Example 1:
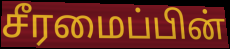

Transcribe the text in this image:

சீரமைப்பின்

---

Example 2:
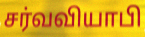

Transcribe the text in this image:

சர்வவியாபி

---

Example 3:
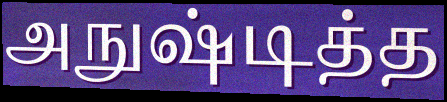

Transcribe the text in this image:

அநுஷ்டித்த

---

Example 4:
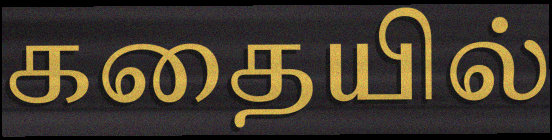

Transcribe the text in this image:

கதையில்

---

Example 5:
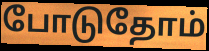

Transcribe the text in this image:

போடுதோம்